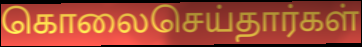
கொலைசெய்தார்கள்